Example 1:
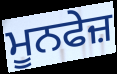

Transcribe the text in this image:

ਮੂਨਫੇਜ਼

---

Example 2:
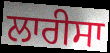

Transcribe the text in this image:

ਲਾਰੀਸਾ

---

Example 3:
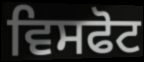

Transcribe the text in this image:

ਵਿਸਫੋਟ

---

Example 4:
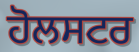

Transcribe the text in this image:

ਹੋਲਸਟਰ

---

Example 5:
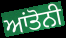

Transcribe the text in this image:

ਆਂਤੋਨੀ